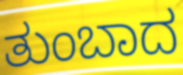
ತುಂಬಾದ